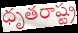
ధృతరాష్ట్ర